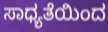
ಸಾಧ್ಯತೆಯಿಂದ